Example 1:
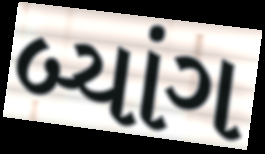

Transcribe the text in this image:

બ્યાંગ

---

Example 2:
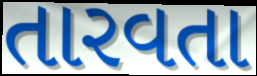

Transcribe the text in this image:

તારવતા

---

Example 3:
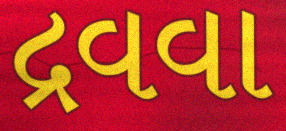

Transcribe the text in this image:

દ્રવવા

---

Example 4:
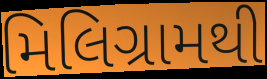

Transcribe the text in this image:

મિલિગ્રામથી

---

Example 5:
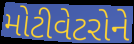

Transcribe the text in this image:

મોટીવેટરોને